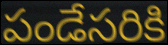
పండేసరికి